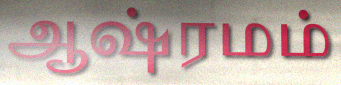
ஆஷ்ரமம்